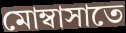
মোম্বাসাতে